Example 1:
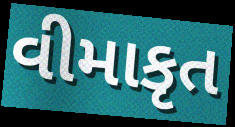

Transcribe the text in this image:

વીમાકૃત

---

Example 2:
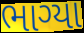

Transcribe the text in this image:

ભાગ્યા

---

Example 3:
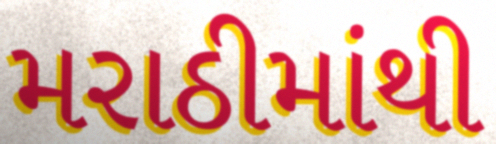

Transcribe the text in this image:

મરાઠીમાંથી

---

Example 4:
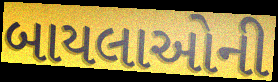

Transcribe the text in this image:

બાયલાઓની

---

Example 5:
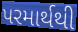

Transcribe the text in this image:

પરમાર્થથી